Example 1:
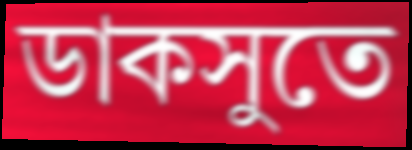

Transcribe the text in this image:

ডাকসুতে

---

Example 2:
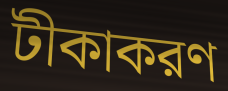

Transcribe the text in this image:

টীকাকরণ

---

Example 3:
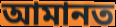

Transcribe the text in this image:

আমানত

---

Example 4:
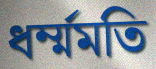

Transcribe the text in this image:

ধর্ম্মমতি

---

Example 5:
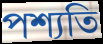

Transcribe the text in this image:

পশ্যতি